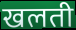
खलती